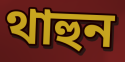
থাহুন